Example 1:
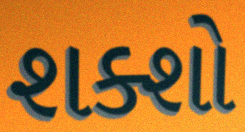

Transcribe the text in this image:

શક્શો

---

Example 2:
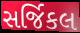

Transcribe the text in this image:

સર્જિકલ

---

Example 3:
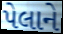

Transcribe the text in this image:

પેલાને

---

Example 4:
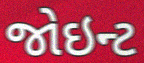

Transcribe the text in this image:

જોઇન્ટ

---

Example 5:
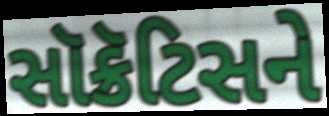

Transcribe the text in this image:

સૉક્રૅટિસને